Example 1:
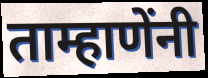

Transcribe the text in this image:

ताम्हाणेंनी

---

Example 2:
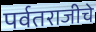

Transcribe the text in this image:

पर्वतराजीचे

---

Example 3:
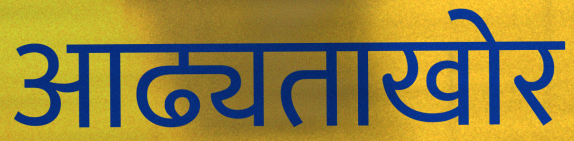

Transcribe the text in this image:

आढ्यताखोर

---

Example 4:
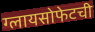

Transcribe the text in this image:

ग्लायसोफेटची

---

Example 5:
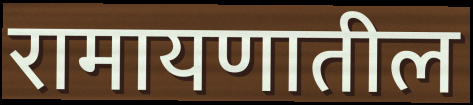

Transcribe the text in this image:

रामायणातील